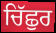
ਚਿੱਛੁਰ